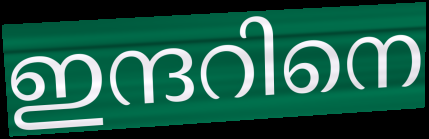
ഇന്ദറിനെ